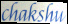
chakshu